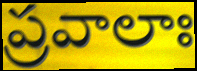
ప్రవాలాః